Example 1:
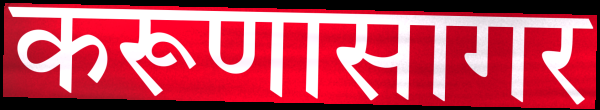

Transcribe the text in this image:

करूणासागर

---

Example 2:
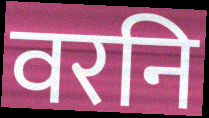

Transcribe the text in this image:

वरनि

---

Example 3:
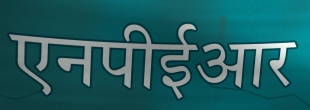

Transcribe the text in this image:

एनपीईआर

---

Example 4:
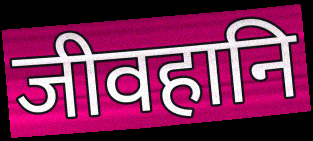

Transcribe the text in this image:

जीवहानि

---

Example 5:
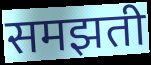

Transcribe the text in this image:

समझती